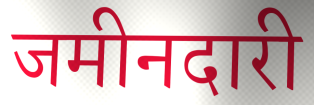
जमीनदारी